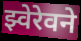
झ्वेरेवने